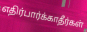
எதிர்பார்க்காதீர்கள்